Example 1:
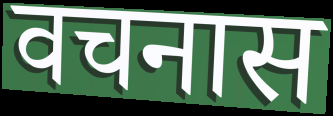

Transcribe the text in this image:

वचनास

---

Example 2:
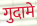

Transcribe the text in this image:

गुदामे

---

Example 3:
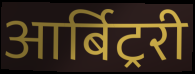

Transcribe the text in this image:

आर्बिट्ररी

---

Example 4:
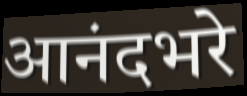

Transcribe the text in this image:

आनंदभरे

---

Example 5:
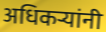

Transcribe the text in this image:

अधिकऱ्यांनी